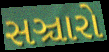
સઞ્ચારો